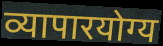
व्यापारयोग्य